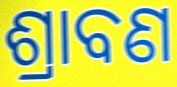
ଶ୍ରାବଣ